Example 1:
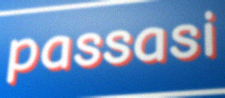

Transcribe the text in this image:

passasi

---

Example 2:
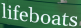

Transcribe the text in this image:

lifeboats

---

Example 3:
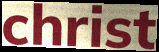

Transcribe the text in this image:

christ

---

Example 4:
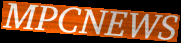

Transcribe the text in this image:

MPCNEWS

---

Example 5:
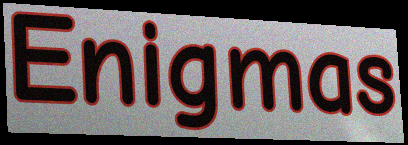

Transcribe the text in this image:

Enigmas